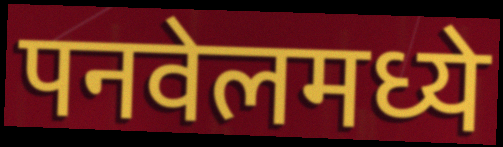
पनवेलमध्ये